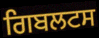
ਗਿਬਲਟਸ